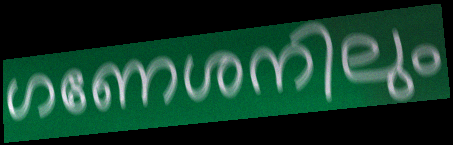
ഗണേശനിലും